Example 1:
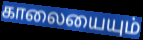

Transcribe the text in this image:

காலையையும்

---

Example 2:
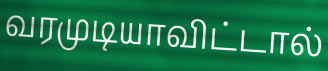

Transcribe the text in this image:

வரமுடியாவிட்டால்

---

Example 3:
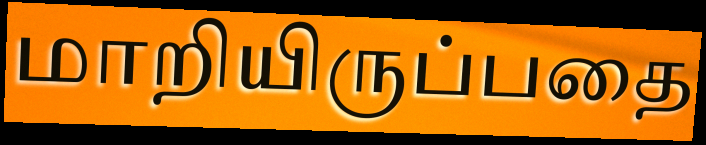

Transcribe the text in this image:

மாறியிருப்பதை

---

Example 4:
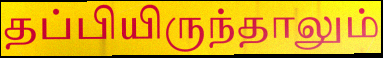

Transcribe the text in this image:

தப்பியிருந்தாலும்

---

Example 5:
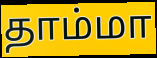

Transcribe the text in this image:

தாம்மா